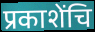
प्रकाशेंचि